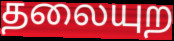
தலையுற